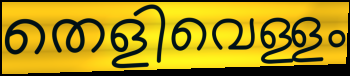
തെളിവെള്ളം